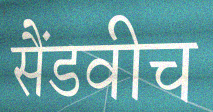
सैंडवीच